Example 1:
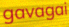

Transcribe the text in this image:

gavagai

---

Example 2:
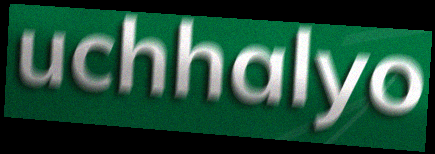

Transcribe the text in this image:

uchhalyo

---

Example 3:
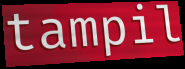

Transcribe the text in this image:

tampil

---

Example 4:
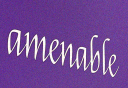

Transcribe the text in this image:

amenable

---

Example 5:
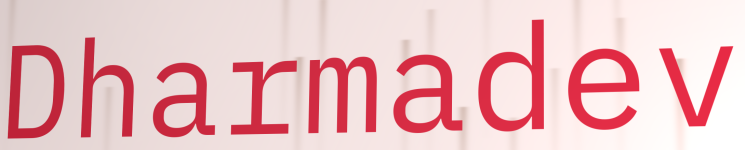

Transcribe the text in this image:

Dharmadev